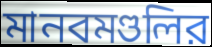
মানবমণ্ডলির